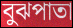
বুঝপাতা